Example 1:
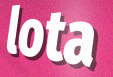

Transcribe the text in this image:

lota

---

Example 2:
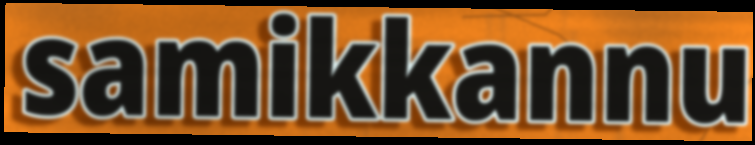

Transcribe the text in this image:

samikkannu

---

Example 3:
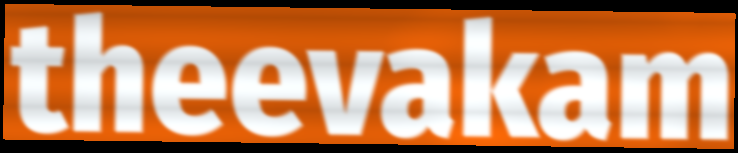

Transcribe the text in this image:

theevakam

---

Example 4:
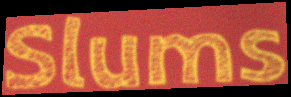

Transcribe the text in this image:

Slums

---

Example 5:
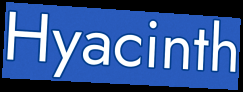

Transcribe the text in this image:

Hyacinth